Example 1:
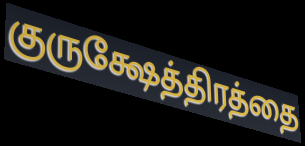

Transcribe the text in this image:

குருக்ஷேத்திரத்தை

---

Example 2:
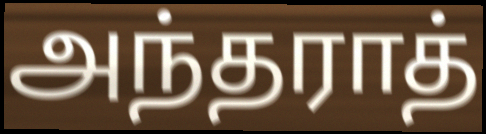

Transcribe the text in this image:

அந்தராத்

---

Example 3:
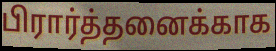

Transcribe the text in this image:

பிரார்த்தனைக்காக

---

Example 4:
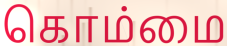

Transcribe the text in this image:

கொம்மை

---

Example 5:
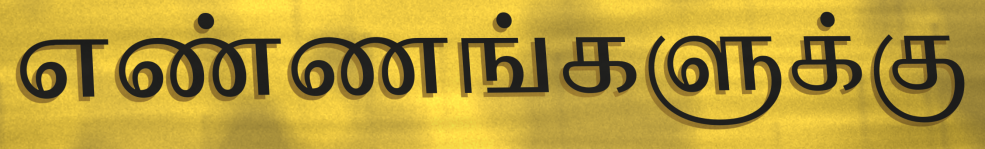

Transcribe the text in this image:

எண்ணங்களுக்கு